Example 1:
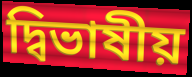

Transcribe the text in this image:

দ্বিভাষীয়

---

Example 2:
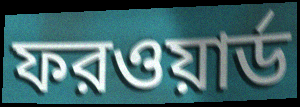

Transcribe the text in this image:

ফরওয়ার্ড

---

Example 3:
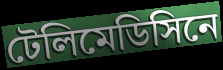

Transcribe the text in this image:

টেলিমেডিসিনে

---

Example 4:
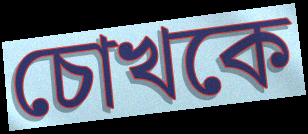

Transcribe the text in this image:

চোখকে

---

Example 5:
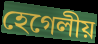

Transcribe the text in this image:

হেগেলীয়